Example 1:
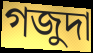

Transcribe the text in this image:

গজুদা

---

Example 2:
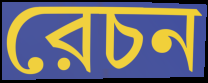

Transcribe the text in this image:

রেচন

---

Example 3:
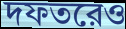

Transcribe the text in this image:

দফতরেও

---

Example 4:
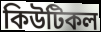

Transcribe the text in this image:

কিউটিকল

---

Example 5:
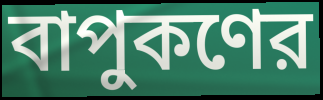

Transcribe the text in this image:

বাপুকণের